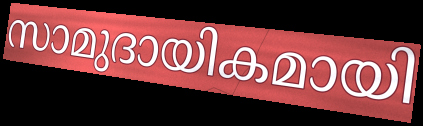
സാമുദായികമായി